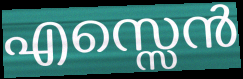
എസ്സെൻ